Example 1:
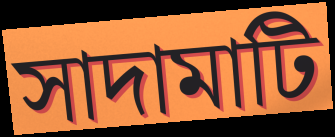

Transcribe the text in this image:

সাদামাটি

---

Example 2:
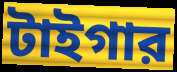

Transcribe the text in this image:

টাইগার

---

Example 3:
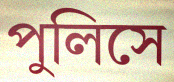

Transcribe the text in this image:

পুলিসে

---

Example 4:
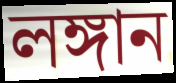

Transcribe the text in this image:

লঙ্গান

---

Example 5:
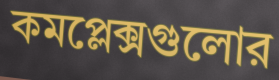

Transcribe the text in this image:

কমপ্লেক্সগুলোর